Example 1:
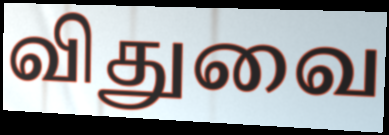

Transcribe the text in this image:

விதுவை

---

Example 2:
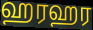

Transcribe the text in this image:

ஹரஹர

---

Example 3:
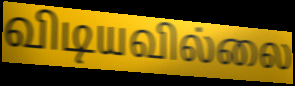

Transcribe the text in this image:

விடியவில்லை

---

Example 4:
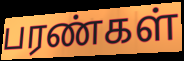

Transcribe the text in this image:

பரண்கள்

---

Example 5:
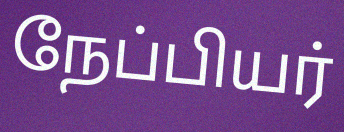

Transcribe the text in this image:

நேப்பியர்